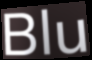
Blu